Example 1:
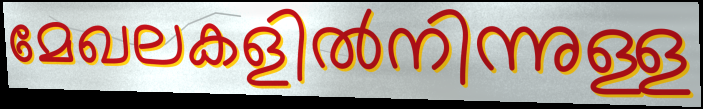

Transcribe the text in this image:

മേഖലകളിൽനിന്നുള്ള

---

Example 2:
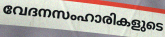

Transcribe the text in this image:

വേദനസംഹാരികളുടെ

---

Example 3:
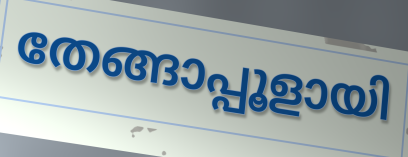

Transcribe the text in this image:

തേങ്ങാപ്പൂളായി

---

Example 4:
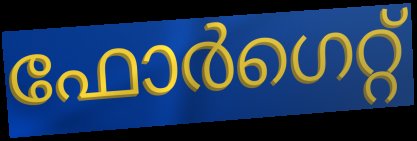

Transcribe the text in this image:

ഫോർഗെറ്റ്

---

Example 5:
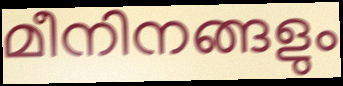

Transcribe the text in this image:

മീനിനങ്ങളും